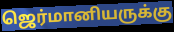
ஜெர்மானியருக்கு